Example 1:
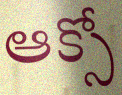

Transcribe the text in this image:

ఆక్సో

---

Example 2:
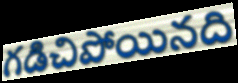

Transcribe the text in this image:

గడిచిపోయినది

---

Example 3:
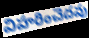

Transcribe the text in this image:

విహరించెదవు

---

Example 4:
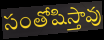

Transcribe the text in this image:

సంతోషిస్తావు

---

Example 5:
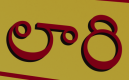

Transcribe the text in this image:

లారి